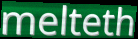
melteth